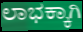
ಲಾಭಕ್ಕಾಗಿ